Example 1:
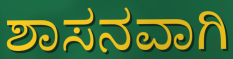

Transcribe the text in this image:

ಶಾಸನವಾಗಿ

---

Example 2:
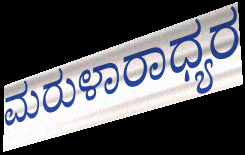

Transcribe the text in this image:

ಮರುಳಾರಾಧ್ಯರ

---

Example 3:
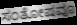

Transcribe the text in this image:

ಸಂತೋಷವೂ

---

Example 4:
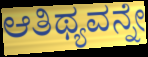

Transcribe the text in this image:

ಆತಿಥ್ಯವನ್ನೇ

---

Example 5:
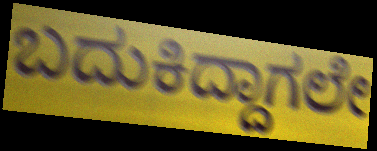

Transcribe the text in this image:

ಬದುಕಿದ್ದಾಗಲೇ